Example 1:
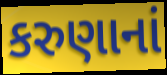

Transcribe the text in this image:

કરુણાનાં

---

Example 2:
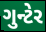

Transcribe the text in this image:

ગુન્ટેર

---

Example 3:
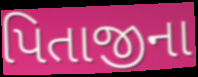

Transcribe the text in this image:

પિતાજીના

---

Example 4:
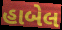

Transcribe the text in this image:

હાબેલ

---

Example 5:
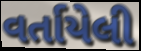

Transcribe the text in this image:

વર્તાયેલી